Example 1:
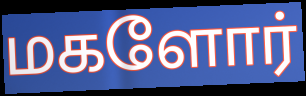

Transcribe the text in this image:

மகளோர்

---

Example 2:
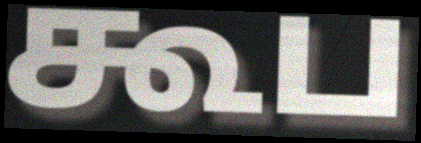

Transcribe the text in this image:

கூப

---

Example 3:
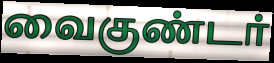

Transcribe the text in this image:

வைகுண்டர்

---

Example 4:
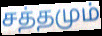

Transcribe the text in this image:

சத்தமும்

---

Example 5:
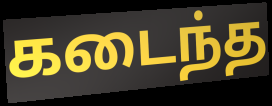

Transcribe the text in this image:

கடைந்த